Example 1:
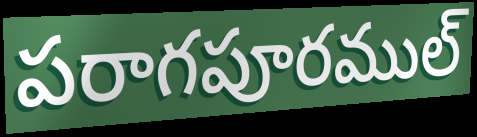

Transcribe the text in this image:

పరాగపూరముల్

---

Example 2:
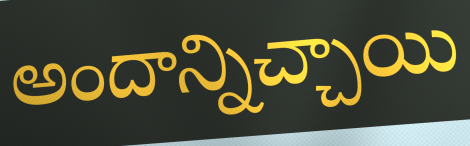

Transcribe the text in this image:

అందాన్నిచ్చాయి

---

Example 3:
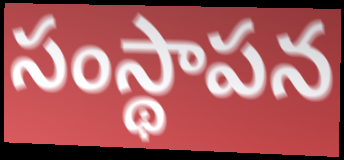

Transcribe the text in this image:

సంస్థాపన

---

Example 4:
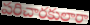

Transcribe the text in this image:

పరిచారకులారా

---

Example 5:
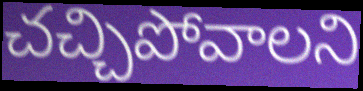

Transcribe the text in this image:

చచ్చిపోవాలని